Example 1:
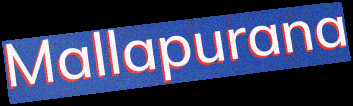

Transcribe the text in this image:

Mallapurana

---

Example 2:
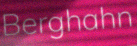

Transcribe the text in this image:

Berghahn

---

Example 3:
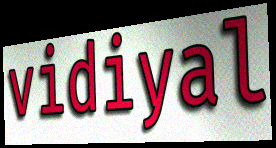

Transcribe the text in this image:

vidiyal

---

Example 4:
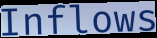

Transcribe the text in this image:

Inflows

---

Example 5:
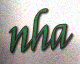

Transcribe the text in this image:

nha